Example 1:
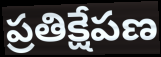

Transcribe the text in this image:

ప్రతిక్షేపణ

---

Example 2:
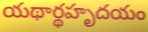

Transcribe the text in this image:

యథార్థహృదయం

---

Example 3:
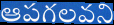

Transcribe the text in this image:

ఆపగలవని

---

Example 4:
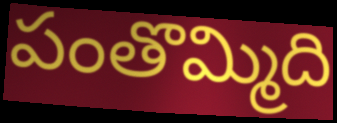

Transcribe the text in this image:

పంతొమ్మిది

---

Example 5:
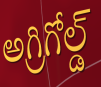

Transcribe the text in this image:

అగ్రిగోల్డ్